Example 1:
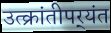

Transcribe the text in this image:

उत्क्रांतीपर्यंत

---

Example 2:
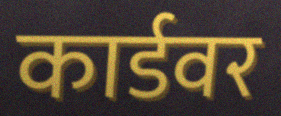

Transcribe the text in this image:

कार्डवर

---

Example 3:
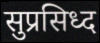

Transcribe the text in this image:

सुप्रसिध्द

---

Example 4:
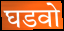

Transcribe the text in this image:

घडवो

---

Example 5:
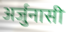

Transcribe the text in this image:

अर्जुनासी